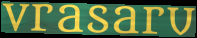
vrasaru